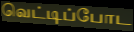
வெட்டிப்போட